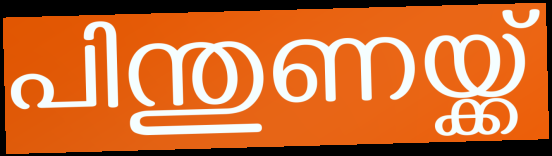
പിന്തുണയ്ക്ക്